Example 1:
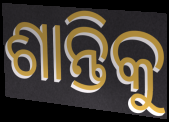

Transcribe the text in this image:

ଶାନ୍ତିକୁ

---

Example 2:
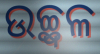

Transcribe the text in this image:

ଉଚ୍ଛ୍ୱଳ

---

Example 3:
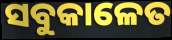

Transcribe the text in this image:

ସବୁକାଳେତ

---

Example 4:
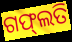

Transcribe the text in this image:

ଗଫ୍‌ଲତି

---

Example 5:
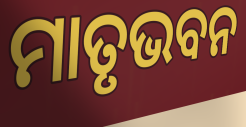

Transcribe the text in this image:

ମାତୃଭବନ